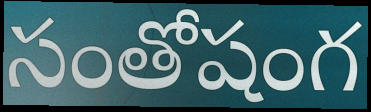
సంతోషంగ